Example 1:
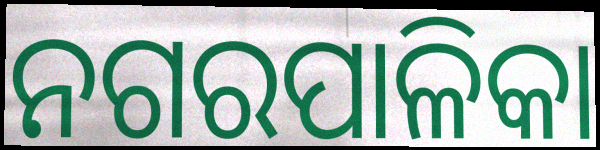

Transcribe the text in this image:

ନଗରପାଳିକା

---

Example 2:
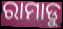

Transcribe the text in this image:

ରାମାଡୁ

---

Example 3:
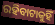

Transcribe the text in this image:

ରହିବାଟାକୁହିଁ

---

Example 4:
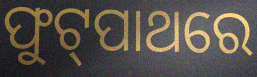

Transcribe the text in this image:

ଫୁଟ୍‍ପାଥରେ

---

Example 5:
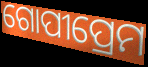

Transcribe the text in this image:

ଗୋପୀପ୍ରେମ